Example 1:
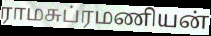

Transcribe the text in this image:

ராமசுப்ரமணியன்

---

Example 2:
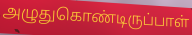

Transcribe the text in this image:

அழுதுகொண்டிருப்பாள்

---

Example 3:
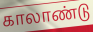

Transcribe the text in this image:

காலாண்டு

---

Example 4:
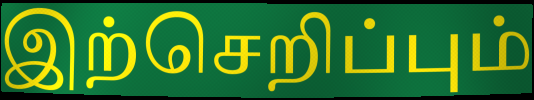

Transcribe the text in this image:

இற்செறிப்பும்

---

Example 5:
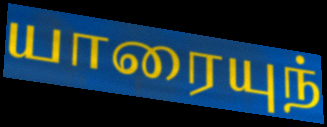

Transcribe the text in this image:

யாரையுந்